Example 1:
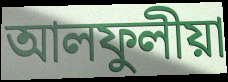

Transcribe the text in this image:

আলফুলীয়া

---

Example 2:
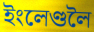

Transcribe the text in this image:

ইংলেণ্ডলৈ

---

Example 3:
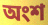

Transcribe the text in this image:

অংশ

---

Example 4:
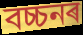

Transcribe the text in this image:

বচ্চনৰ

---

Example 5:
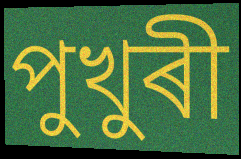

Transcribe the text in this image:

পুখুৰী